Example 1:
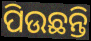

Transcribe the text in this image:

ପିଉଛନ୍ତି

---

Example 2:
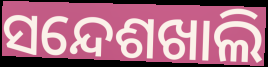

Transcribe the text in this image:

ସନ୍ଦେଶଖାଲି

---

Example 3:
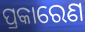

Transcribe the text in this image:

ପ୍ରକାରେଣ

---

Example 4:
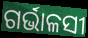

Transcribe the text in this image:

ଗର୍ଭାଳସୀ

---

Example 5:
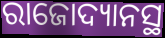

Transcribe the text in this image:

ରାଜୋଦ୍ୟାନସ୍ଥ